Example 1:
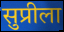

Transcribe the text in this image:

सुप्रीला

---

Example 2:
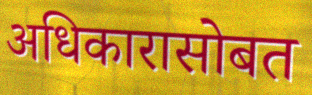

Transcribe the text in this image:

अधिकारासोबत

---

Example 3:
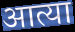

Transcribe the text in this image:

आत्या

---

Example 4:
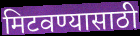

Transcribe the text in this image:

मिटवण्यासाठी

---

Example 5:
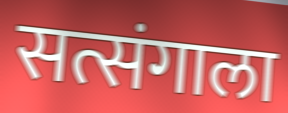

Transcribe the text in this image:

सत्संगाला